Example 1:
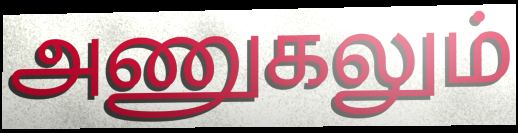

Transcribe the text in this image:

அணுகலும்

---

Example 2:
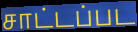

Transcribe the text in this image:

சாட்டப்பட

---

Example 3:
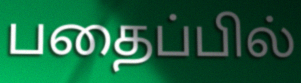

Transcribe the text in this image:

பதைப்பில்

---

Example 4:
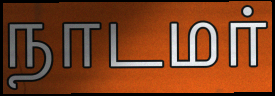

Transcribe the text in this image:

நாடமர்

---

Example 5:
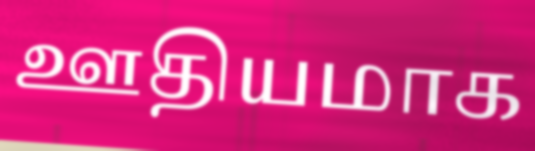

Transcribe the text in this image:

ஊதியமாக